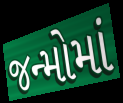
જન્મોમાં